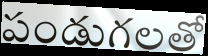
పండుగలతో